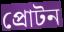
প্রোটন